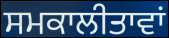
ਸਮਕਾਲੀਤਾਵਾਂ